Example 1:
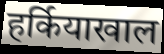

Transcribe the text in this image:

हर्कियाखाल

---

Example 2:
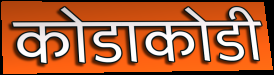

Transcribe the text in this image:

कोडाकोडी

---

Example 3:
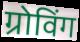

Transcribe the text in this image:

ग्रोविंग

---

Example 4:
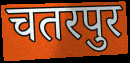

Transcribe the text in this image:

चतरपुर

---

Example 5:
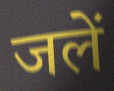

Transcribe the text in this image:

जलें